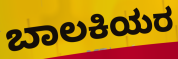
ಬಾಲಕಿಯರ